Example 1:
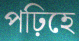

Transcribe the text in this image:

পঢ়িহে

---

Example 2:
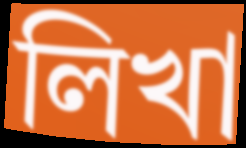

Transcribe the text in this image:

লিখা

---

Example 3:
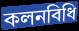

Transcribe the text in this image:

কলনবিধি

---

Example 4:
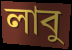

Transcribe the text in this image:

লাবু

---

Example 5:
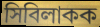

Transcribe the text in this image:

সিবিলাকক